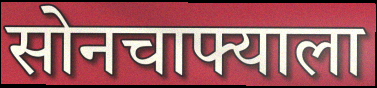
सोनचाफ्याला